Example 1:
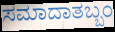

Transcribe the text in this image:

ಸಮಾದಾತಬ್ಬಂ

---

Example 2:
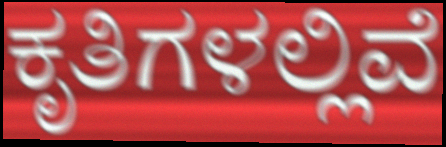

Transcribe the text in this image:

ಕೃತಿಗಳಲ್ಲಿವೆ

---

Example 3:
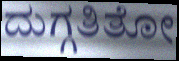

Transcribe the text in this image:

ದುಗ್ಗತಿತೋ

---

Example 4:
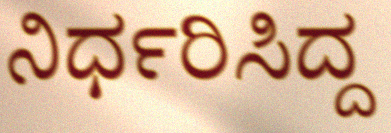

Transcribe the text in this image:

ನಿರ್ಧರಿಸಿದ್ದ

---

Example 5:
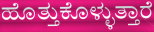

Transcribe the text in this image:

ಹೊತ್ತುಕೊಳ್ಳುತ್ತಾರೆ